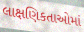
લાક્ષણિકતાઓમાં